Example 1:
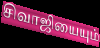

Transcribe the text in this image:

சிவாஜியையும்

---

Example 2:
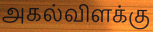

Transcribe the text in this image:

அகல்விளக்கு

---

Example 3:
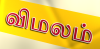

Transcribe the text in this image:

விமலம்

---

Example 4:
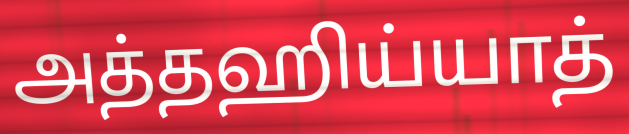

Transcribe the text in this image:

அத்தஹிய்யாத்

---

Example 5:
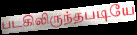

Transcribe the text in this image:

படகிலிருந்தபடியே